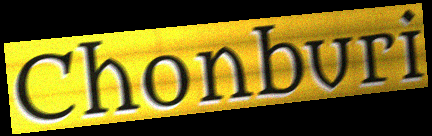
Chonburi